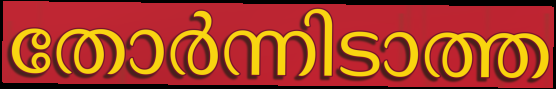
തോർന്നിടാത്ത